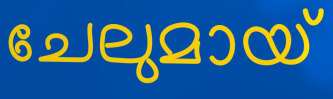
ചേലുമായ്